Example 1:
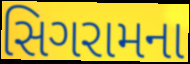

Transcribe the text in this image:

સિગરામના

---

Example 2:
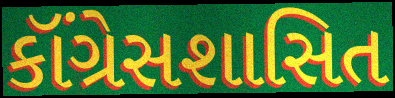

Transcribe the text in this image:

કૉંગ્રેસશાસિત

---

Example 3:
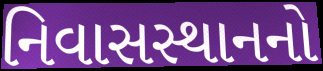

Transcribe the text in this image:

નિવાસસ્થાનનો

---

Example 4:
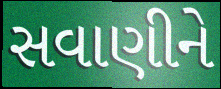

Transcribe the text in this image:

સવાણીને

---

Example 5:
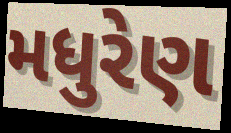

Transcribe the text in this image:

મધુરેણ